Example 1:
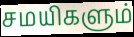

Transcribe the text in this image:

சமயிகளும்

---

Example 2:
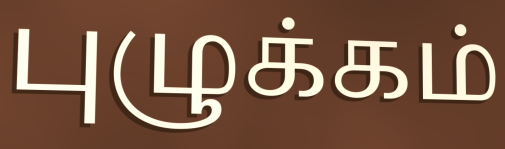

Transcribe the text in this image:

புழுக்கம்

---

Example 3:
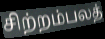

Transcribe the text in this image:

சிற்றம்பலத்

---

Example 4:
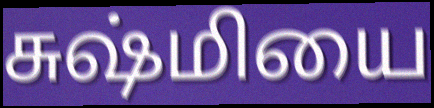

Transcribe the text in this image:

சுஷ்மியை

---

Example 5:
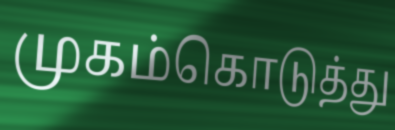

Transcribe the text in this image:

முகம்கொடுத்து